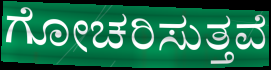
ಗೋಚರಿಸುತ್ತವೆ